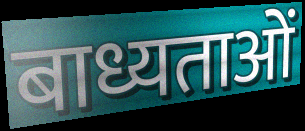
बाध्यताओं